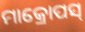
ମାକ୍ରୋପସ୍